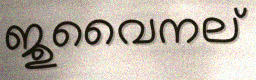
ജുവൈനല്